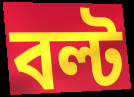
বল্ট